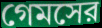
গেমসের